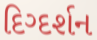
દિગ્દર્શન